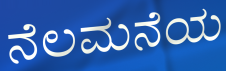
ನೆಲಮನೆಯ